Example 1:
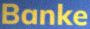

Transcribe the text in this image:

Banke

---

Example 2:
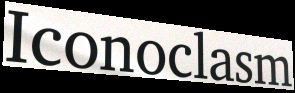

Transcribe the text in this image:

Iconoclasm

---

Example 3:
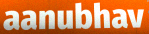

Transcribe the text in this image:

aanubhav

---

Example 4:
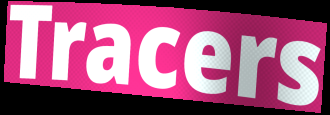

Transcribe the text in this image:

Tracers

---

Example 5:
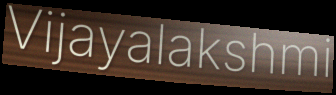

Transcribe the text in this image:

Vijayalakshmi